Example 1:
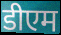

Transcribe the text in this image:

डीएम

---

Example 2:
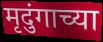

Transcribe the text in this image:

मृदुंगाच्या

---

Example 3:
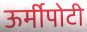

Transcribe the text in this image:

ऊर्मीपोटी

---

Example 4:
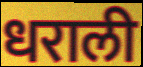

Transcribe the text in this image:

धराली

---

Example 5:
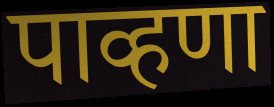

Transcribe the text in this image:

पाव्हणा